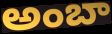
అంబా